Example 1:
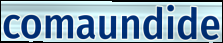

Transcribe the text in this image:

comaundide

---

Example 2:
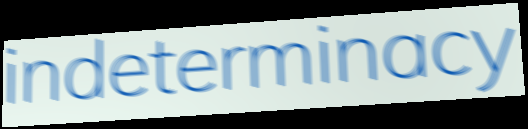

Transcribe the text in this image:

indeterminacy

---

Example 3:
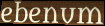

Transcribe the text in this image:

ebenum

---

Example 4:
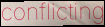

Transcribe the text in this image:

conflicting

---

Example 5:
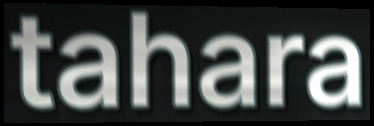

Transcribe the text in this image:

tahara